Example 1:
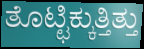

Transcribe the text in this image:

ತೊಟ್ಟಿಕ್ಕುತ್ತಿತ್ತು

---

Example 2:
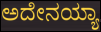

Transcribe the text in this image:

ಅದೇನಯ್ಯಾ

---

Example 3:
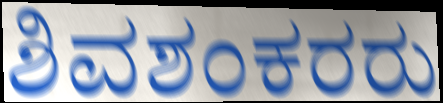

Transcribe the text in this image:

ಶಿವಶಂಕರರು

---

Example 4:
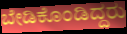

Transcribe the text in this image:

ಬೇಡಿಕೊಂಡಿದ್ದರು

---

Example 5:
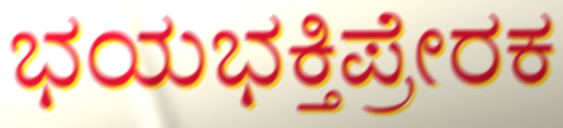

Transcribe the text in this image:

ಭಯಭಕ್ತಿಪ್ರೇರಕ